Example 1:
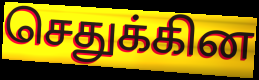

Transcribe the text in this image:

செதுக்கின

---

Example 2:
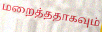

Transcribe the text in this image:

மறைத்ததாகவும்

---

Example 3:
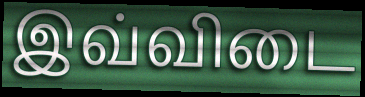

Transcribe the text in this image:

இவ்விடை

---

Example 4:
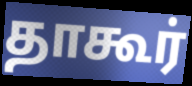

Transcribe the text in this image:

தாகூர்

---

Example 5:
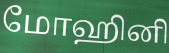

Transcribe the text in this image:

மோஹினி